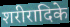
शरीरादिके